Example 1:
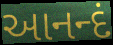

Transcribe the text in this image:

આનન્દં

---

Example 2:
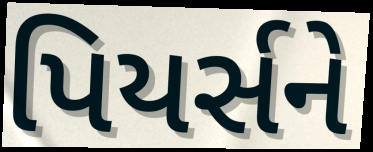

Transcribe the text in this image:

પિયર્સને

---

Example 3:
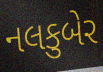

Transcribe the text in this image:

નલકુબેર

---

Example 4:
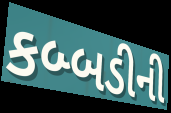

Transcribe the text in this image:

કબ્બડીની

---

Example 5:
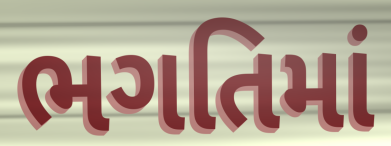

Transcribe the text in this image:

ભગતિમાં